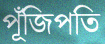
পূঁজিপতি